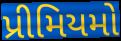
પ્રીમિયમો